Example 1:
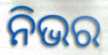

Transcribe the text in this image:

ନିଭର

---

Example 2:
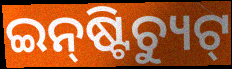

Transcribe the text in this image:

ଇନ୍‌ଷ୍ଟିଚ୍ୟୁଟ୍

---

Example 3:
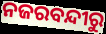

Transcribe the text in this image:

ନଜରବନ୍ଦୀରୁ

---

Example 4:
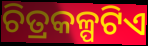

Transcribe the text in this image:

ଚିତ୍ରକଳ୍ପଟିଏ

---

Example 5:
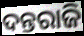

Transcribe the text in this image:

ଦନ୍ତରାଜି